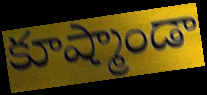
కూష్మాండా